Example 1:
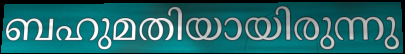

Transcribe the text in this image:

ബഹുമതിയായിരുന്നു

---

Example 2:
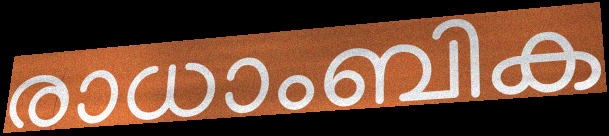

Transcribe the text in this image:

രാധാംബിക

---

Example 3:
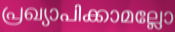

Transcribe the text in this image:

പ്രഖ്യാപിക്കാമല്ലോ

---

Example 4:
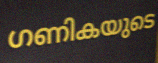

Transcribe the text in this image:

ഗണികയുടെ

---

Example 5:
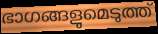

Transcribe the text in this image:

ഭാഗങ്ങളുമെടുത്ത്